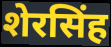
शेरसिंह